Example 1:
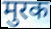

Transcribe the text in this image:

मुरक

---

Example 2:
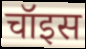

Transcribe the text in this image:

चॉइस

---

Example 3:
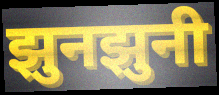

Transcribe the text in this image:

झुनझुनी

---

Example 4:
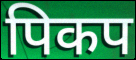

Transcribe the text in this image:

पिकप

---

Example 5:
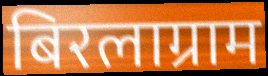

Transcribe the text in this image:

बिरलाग्राम